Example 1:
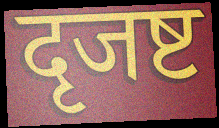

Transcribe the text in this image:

दृजष्ट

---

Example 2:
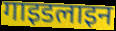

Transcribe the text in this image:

गाइडलाइन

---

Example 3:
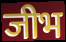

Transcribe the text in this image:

जीभ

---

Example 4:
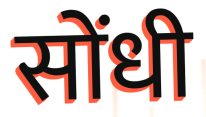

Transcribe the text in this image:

सोंधी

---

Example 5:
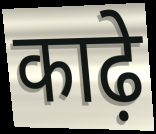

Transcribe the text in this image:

काढ़े